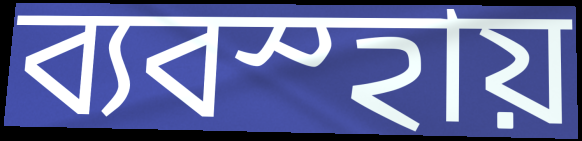
ব্যবস্হায়